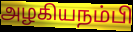
அழகியநம்பி